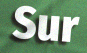
Sur